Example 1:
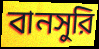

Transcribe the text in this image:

বানসুরি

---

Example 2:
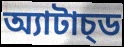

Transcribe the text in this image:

অ্যাটাচ্ড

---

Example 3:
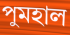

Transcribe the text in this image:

পুমহাল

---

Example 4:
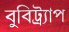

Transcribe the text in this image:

বুবিট্র্যাপ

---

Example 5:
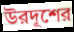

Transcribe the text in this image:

উরদূশের